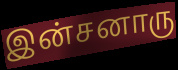
இன்சனாரு